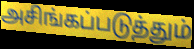
அசிங்கப்படுத்தும்